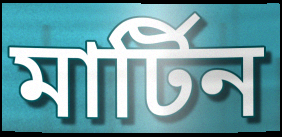
মাৰ্টিন